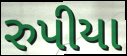
રુપીયા